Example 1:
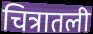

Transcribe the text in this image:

चित्रातली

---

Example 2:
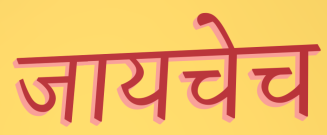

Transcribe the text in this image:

जायचेच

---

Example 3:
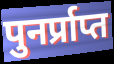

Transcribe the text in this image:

पुनर्प्राप्त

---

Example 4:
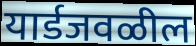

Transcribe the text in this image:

यार्डजवळील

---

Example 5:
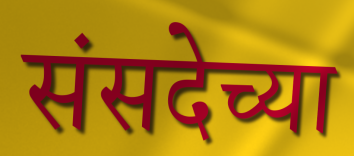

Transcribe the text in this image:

संसदेच्या